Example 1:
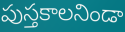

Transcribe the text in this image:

పుస్తకాలనిండా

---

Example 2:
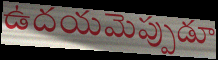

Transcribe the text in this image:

ఉదయమెప్పుడూ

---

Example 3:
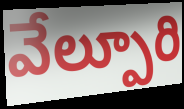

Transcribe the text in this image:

వేల్పూరి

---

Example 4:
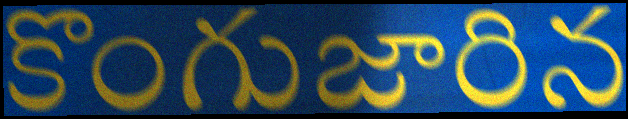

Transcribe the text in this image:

కొంగుజారిన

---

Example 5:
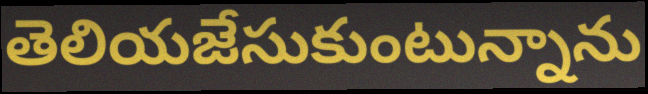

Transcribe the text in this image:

తెలియజేసుకుంటున్నాను